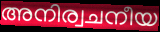
അനിര്വചനീയ